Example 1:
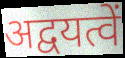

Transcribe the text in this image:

अद्वयत्वें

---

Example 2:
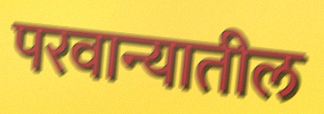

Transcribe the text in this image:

परवान्यातील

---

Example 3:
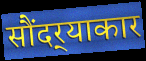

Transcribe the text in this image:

सौंदर्याकार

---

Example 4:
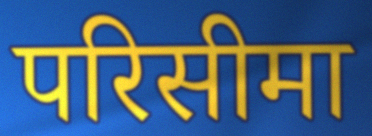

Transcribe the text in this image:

परिसीमा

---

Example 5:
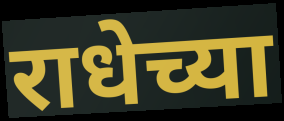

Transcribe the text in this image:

राधेच्या